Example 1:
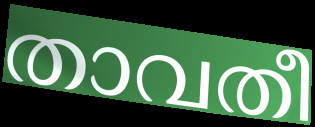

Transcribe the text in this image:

താവതീ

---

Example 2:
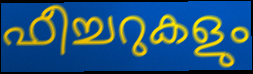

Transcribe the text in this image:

ഫീച്ചറുകളും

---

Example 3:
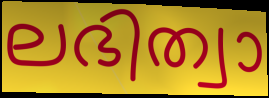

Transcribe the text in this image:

ലഭിത്വാ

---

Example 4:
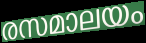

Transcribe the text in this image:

രസമാലയം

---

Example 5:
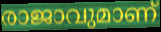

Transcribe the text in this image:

രാജാവുമാണ്